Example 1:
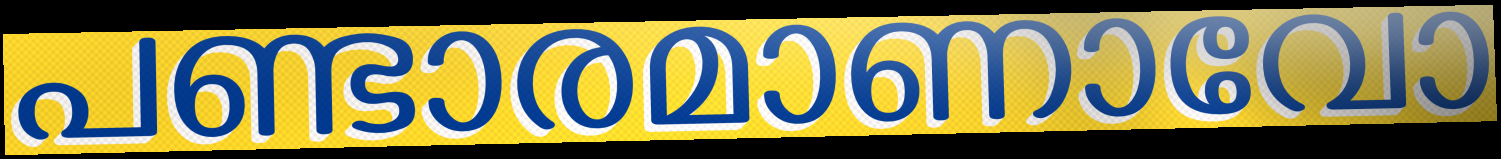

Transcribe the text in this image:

പണ്ടാരമാണാവോ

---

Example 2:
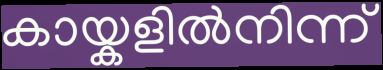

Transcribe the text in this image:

കായ്കളിൽനിന്ന്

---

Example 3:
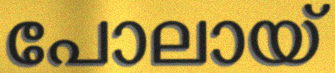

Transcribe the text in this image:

പോലായ്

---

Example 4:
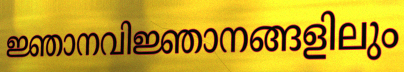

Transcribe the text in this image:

ജ്ഞാനവിജ്ഞാനങ്ങളിലും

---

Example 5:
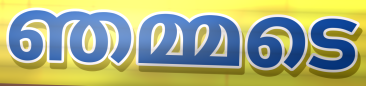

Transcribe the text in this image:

ഞമ്മടെ